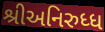
શ્રીઅનિરુધ્ધ